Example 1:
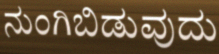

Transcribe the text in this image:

ನುಂಗಿಬಿಡುವುದು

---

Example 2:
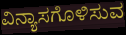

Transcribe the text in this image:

ವಿನ್ಯಾಸಗೊಳಿಸುವ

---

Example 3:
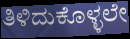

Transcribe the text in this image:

ತಿಳಿದುಕೊಳ್ಳಲೇ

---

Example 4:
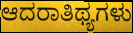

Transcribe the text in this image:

ಆದರಾತಿಥ್ಯಗಳು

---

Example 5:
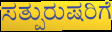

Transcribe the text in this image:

ಸತ್ಪುರುಷರಿಗೆ